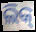
ଲିକ୍